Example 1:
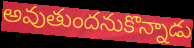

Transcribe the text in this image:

అవుతుందనుకొన్నాడు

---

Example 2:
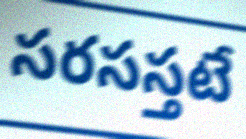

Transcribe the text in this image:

సరసస్తటే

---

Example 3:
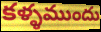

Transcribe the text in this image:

కళ్ళముందు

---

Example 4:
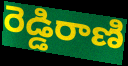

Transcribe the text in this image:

రెడ్డిరాణి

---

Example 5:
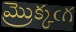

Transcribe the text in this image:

మ్రొక్కఁగ